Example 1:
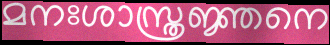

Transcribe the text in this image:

മനഃശാസ്ത്രജ്ഞനെ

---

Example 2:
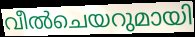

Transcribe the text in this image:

വീൽചെയറുമായി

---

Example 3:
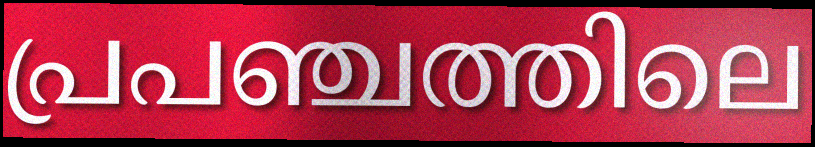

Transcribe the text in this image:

പ്രപഞ്ചത്തിലെ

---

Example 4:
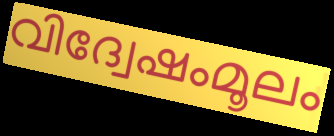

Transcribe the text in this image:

വിദ്വേഷംമൂലം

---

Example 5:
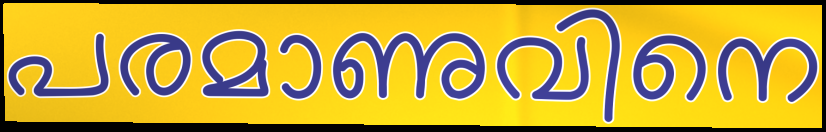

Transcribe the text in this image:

പരമാണുവിനെ